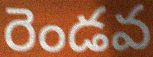
రెండవ